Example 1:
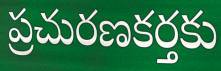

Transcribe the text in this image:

ప్రచురణకర్తకు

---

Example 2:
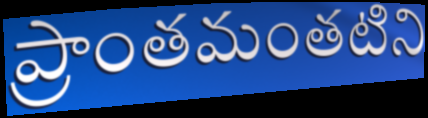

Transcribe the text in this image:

ప్రాంతమంతటిని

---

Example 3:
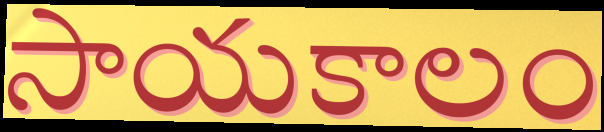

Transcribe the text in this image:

సాయకాలం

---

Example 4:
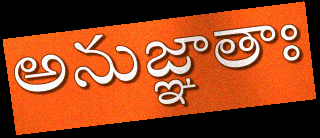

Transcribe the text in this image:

అనుజ్ఞాతాః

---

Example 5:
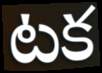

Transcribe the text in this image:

టక